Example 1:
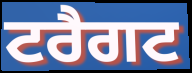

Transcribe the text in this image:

ਟਰੈਗਟ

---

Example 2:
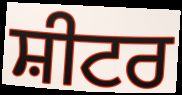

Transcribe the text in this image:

ਸ਼ੀਟਰ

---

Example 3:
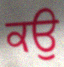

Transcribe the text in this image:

ਕਉ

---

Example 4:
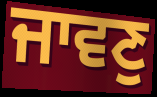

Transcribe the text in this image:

ਜਾਵਣੁ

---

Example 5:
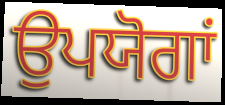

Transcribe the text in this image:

ਉਪਯੋਗਾਂ